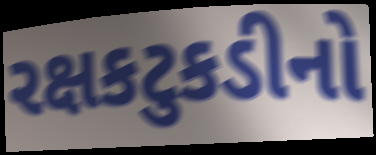
રક્ષકટુકડીનો